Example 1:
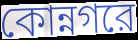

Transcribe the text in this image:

কোন্নগরে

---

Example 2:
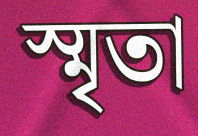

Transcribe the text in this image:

স্মৃতা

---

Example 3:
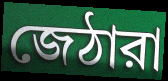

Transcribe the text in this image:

জেঠারা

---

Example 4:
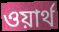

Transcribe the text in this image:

ওয়ার্থ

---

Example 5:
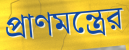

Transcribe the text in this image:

প্রাণমন্ত্রের